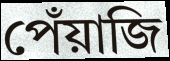
পেঁয়াজি